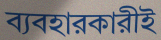
ব্যবহারকারীই